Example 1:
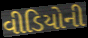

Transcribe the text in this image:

વીડિયોની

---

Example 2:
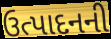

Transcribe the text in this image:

ઉત્પાદનની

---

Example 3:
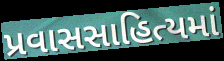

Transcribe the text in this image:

પ્રવાસસાહિત્યમાં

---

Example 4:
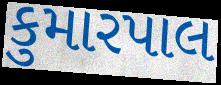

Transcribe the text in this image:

કુમારપાલ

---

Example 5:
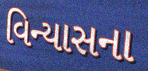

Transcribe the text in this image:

વિન્યાસના